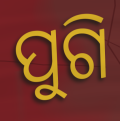
ପୁଗି